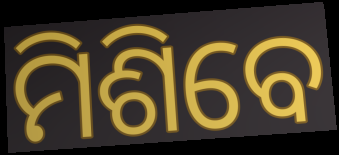
ମିଶିବେ